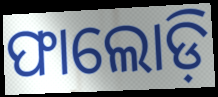
ଫାଲୋଡ଼ି